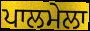
ਪਾਲਮੇਲਾ